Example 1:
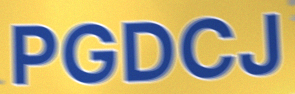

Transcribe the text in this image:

PGDCJ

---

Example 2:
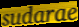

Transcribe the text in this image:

sudarae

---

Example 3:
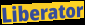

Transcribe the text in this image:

Liberator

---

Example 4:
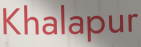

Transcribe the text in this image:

Khalapur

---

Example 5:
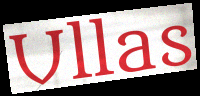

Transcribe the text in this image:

Ullas